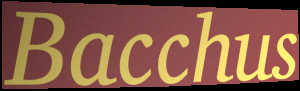
Bacchus